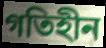
গতিহীন